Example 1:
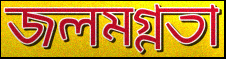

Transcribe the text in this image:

জলমগ্নতা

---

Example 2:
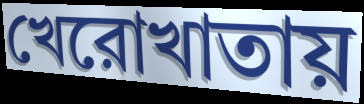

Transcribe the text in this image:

খেরোখাতায়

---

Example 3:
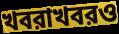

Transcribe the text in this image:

খবরাখবরও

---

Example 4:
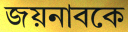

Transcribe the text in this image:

জয়নাবকে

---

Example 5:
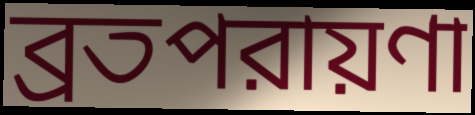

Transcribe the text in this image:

ব্রতপরায়ণা